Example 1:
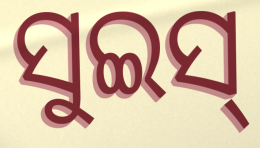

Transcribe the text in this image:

ସୁଇସ୍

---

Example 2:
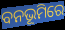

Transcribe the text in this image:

ବନଭୂମିରେ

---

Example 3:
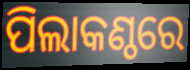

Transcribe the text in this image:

ପିଲାକଣ୍ଠରେ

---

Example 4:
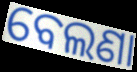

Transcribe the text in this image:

ବେଲଣା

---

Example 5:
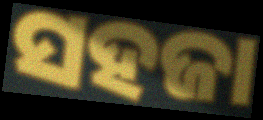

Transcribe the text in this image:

ସହଜା